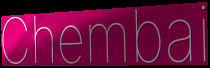
Chembai